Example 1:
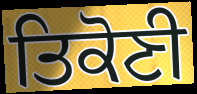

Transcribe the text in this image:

ਤਿਕੋਣੀ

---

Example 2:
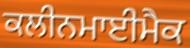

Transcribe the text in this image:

ਕਲੀਨਮਾਈਮੈਕ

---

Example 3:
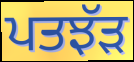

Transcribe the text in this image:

ਪਤਝੱੜ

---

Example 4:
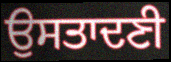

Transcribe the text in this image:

ਉਸਤਾਦਣੀ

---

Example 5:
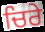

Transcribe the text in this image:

ਚਿਰੇ